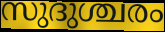
സുദുശ്ചരം